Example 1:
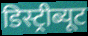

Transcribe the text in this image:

डिस्ट्रीब्यूट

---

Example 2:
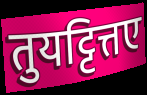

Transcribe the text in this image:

तुयट्टित्तए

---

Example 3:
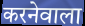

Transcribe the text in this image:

करनेवाला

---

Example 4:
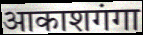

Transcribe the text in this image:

आकाशगंगा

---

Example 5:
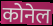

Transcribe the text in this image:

कोनेल